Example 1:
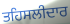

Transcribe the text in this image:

ਤਹਿਸਲੀਦਾਰ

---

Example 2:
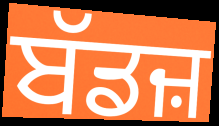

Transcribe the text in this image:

ਬੱਡਜ਼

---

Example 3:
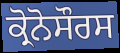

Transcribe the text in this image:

ਕ੍ਰੋਨੋਸੌਰਸ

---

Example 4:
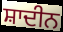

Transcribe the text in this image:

ਸ਼ਾਦੀਨ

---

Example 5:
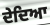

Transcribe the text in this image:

ਦੇਦਿਆ